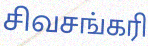
சிவசங்கரி